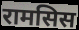
रामसिस